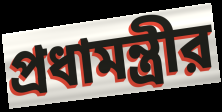
প্রধামন্ত্রীর